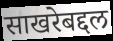
साखरेबद्दल